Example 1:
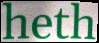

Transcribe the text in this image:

heth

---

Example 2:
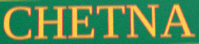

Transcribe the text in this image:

CHETNA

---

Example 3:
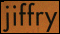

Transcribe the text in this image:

jiffry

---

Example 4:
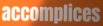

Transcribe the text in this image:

accomplices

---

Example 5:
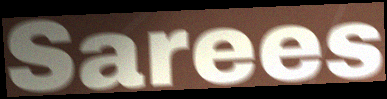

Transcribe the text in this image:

Sarees